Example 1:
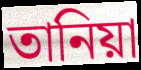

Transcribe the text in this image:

তানিয়া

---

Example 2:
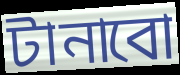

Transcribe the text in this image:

টানাবো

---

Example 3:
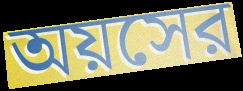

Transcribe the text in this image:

অয়সের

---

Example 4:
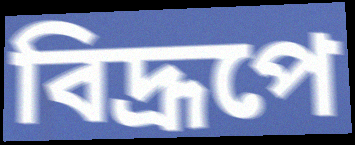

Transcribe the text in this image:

বিদ্রূপে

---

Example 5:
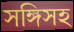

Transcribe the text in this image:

সঙ্গিসহ